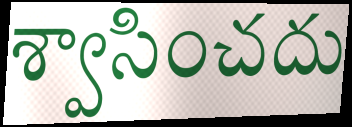
శ్వాసించదు